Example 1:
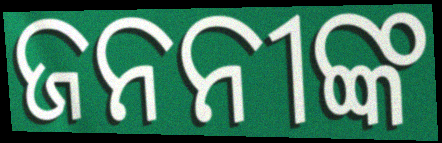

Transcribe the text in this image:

ଜନନୀଙ୍କ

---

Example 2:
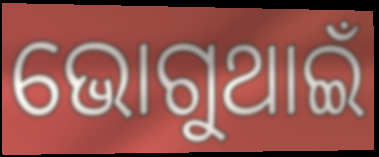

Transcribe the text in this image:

ଭୋଗୁଥାଇଁ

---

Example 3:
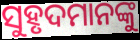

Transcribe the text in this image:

ସୁହୃଦମାନଙ୍କୁ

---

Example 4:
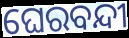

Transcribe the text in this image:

ଘେରବନ୍ଦୀ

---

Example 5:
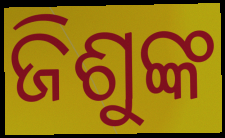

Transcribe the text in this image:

ଜିଶୁଙ୍କ